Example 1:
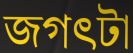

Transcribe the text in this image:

জগৎটা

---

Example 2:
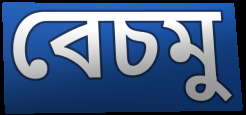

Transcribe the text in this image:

বেচমু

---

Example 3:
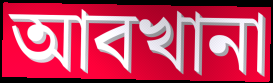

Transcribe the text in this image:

আবখানা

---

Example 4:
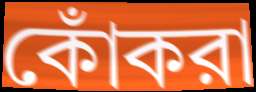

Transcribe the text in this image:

কোঁকরা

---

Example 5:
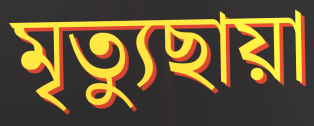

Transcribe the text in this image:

মৃত্যুছায়া